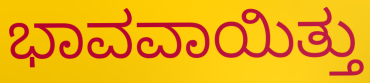
ಭಾವವಾಯಿತ್ತು